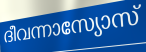
ദീവന്നാസ്യോസ്